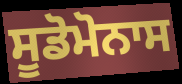
ਸੂਡੋਮੋਨਾਸ